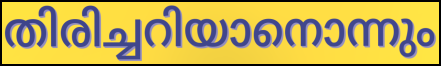
തിരിച്ചറിയാനൊന്നും